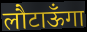
लौटाऊँगा